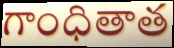
గాంధితాత